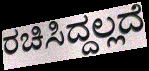
ರಚಿಸಿದ್ದಲ್ಲದೆ